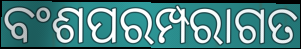
ବଂଶପରମ୍ପରାଗତ